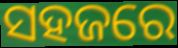
ସହଜରେ